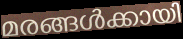
മരങ്ങൾക്കായി